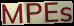
MPEs